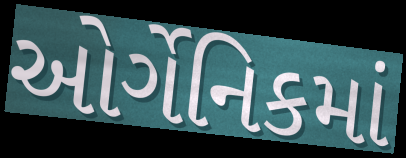
ઓર્ગેનિકમાં